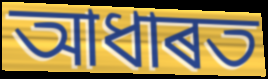
আধাৰত